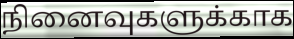
நினைவுகளுக்காக